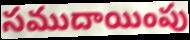
సముదాయింపు